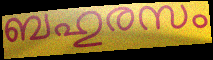
ബഹുരസം